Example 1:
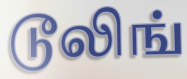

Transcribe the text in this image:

டூலிங்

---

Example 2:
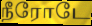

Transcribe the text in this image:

நீரோடே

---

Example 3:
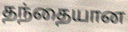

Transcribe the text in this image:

தந்தையான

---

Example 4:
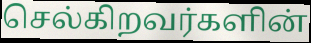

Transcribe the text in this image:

செல்கிறவர்களின்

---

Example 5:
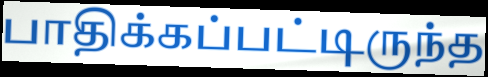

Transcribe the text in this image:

பாதிக்கப்பட்டிருந்த